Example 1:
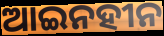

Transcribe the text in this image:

ଆଇନହୀନ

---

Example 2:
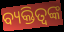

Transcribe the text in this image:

ବ୍ୟକ୍ତିତ୍ବଙ୍କ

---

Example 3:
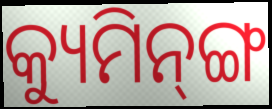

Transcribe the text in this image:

କ୍ୟୁମିନ୍‌ଙ୍ଗ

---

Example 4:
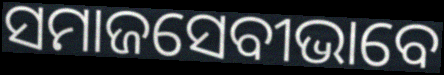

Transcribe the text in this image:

ସମାଜସେବୀଭାବେ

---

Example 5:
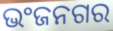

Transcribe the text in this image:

ଭଂଜନଗର